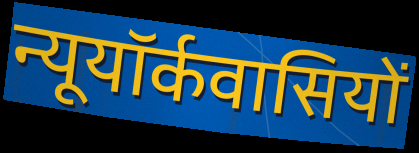
न्यूयॉर्कवासियों